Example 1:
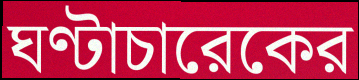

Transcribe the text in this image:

ঘণ্টাচারেকের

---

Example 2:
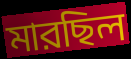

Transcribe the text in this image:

মারছিল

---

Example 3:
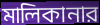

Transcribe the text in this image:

মালিকানার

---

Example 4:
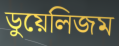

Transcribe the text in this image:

ডুয়েলিজম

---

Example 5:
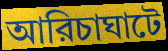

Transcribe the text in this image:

আরিচাঘাটে